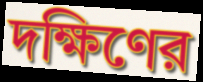
দক্ষিণের